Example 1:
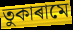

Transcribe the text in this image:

তুকাৰামে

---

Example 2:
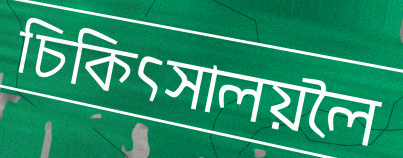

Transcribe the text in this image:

চিকিৎসালয়লৈ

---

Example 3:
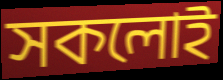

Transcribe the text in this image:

সকলোই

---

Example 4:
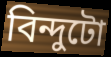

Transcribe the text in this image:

বিন্দুটো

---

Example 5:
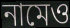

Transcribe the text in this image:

নামেও